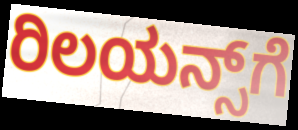
ರಿಲಯನ್ಸ್‌ಗೆ